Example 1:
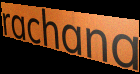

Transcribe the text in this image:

rachana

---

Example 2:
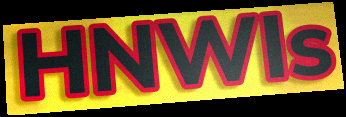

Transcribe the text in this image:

HNWIs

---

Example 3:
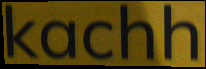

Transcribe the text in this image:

kachh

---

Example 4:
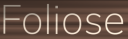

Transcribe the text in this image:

Foliose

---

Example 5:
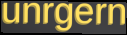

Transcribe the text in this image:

unrgern